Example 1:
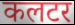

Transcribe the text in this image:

कलटर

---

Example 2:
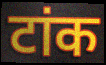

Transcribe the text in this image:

टांक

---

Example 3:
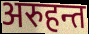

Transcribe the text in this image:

अरुहन्त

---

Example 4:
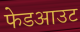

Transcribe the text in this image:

फेडआउट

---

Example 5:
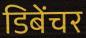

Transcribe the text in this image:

डिबेंचर